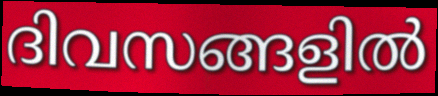
ദിവസങ്ങളിൽ